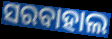
ସରବାହାଲ